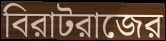
বিরাটরাজের